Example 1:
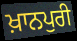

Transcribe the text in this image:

ਖ਼ਾਨਪੁਰੀ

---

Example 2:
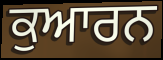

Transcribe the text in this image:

ਕੁਆਰਨ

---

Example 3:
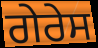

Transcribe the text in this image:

ਗੇਰੇਸ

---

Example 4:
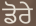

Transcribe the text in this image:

ਡੋਰੇ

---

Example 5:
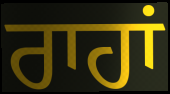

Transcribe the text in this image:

ਰਾਹਾਂ